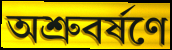
অশ্রুবর্ষণে